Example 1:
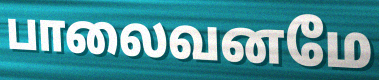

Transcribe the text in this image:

பாலைவனமே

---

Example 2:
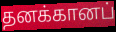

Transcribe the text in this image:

தனக்கானப்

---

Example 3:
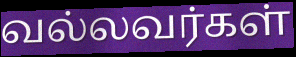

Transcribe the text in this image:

வல்லவர்கள்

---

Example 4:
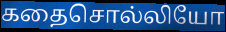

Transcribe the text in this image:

கதைசொல்லியோ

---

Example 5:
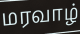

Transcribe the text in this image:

மரவாழ்